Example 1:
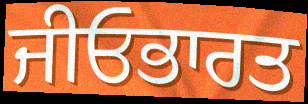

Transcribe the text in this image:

ਜੀਓਭਾਰਤ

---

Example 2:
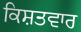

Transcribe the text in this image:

ਕਿਸ਼ਤਵਾਰ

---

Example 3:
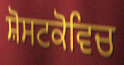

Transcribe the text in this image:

ਸ਼ੋਸਟਕੋਵਿਚ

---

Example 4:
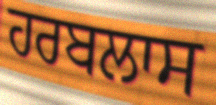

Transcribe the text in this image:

ਹਰਬਲਾਸ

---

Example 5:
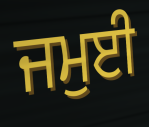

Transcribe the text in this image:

ਜਮੁਈ